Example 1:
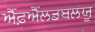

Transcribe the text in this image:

ਐੱਫ਼ਐੱਲਡਬਲਯੂ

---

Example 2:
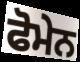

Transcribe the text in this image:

ਫੋਮੇਨ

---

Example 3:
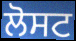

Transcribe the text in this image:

ਲੋਸਟ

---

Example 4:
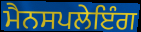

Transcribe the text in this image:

ਮੈਨਸਪਲੇਇੰਗ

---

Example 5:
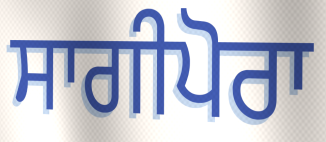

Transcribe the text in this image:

ਸਾਗੀਪੋਰਾ